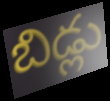
బిడ్లు